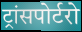
ट्रांसपोर्टरो